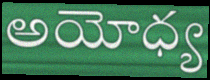
అయోధ్య